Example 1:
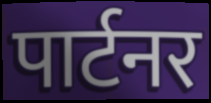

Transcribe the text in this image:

पार्टनर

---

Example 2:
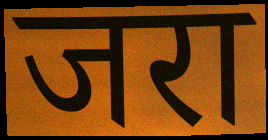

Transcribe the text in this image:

जरा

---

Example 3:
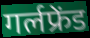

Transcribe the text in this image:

गर्लफ्रेंड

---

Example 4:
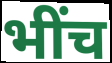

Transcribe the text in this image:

भींच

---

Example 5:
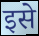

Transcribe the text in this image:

इसे